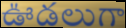
ఊడలుగా